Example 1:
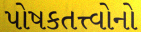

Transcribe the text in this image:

પોષકતત્ત્વોનો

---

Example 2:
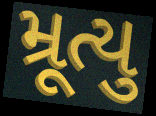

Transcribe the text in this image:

મ્રૂત્યુ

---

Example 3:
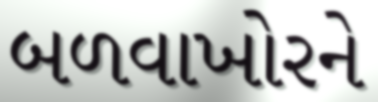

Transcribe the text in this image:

બળવાખોરને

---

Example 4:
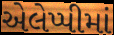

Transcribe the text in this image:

એલેપ્પીમાં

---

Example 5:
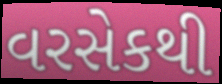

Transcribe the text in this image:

વરસેકથી